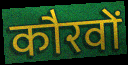
कौरवों